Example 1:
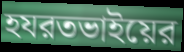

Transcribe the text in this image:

হযরতভাইয়ের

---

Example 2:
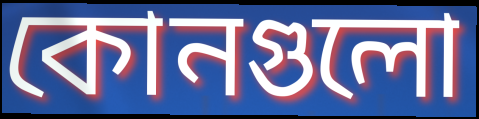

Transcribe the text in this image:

কোনগুলো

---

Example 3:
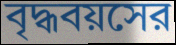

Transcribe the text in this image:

বৃদ্ধবয়সের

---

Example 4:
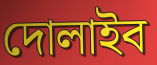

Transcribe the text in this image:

দোলাইব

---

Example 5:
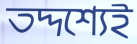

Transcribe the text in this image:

তদ্দশ্যেই